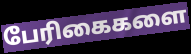
பேரிகைகளை